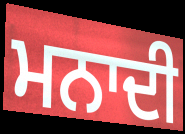
ਮਨਾਦੀ